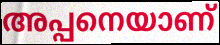
അപ്പനെയാണ്